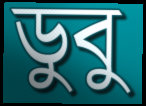
ডুবু